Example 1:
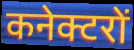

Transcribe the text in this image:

कनेक्टरों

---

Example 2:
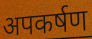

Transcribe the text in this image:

अपकर्षण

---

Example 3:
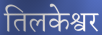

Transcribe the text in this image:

तिलकेश्वर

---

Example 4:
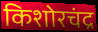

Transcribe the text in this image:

किशोरचंद्र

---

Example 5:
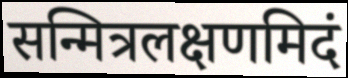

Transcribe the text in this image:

सन्मित्रलक्षणमिदं